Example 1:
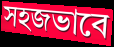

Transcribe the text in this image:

সহজভাবে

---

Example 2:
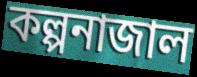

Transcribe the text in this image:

কল্পনাজাল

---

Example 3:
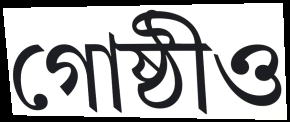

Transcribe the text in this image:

গোষ্ঠীও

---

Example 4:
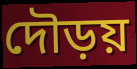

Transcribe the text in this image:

দৌড়য়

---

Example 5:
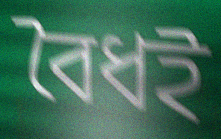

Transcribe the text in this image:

বৈধই